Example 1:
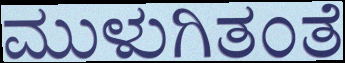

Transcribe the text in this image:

ಮುಳುಗಿತಂತೆ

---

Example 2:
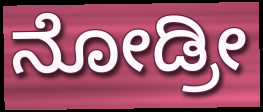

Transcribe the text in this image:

ನೋಡ್ರೀ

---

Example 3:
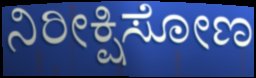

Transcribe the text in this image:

ನಿರೀಕ್ಷಿಸೋಣ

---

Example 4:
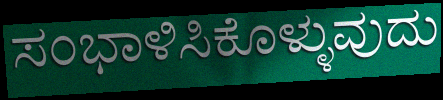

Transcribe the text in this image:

ಸಂಭಾಳಿಸಿಕೊಳ್ಳುವುದು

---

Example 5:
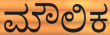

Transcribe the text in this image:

ಮೌಲಿಕ